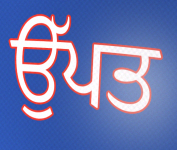
ਉੱਪਤ